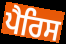
ਪੈਰਿਸ